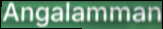
Angalamman